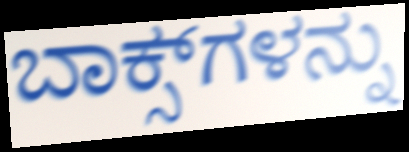
ಬಾಕ್ಸ್‌ಗಳನ್ನು